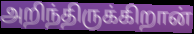
அறிந்திருக்கிறான்